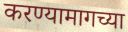
करण्यामागच्या